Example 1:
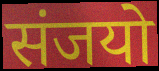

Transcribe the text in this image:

संजयो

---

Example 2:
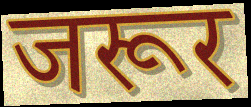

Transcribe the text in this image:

जरूर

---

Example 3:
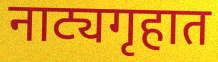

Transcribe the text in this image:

नाट्यगृहात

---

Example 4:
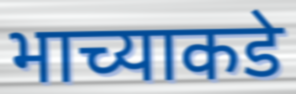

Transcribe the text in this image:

भाच्याकडे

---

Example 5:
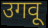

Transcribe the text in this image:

उगवू